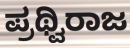
ಪ್ರಥ್ವಿರಾಜ